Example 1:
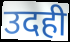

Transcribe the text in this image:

उदही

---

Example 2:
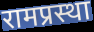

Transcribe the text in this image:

रामप्रस्था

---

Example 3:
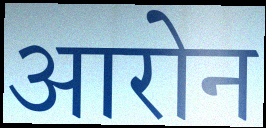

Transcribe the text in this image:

आरोन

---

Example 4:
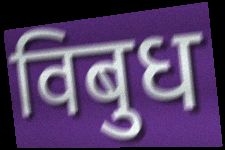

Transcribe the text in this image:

विबुध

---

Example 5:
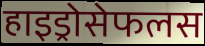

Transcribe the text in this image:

हाइड्रोसेफलस